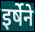
इर्षेने